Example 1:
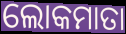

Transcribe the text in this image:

ଲୋକମାତା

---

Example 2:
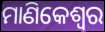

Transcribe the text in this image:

ମାଣିକେଶ୍ଵର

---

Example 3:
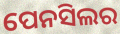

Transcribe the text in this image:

ପେନସିଲର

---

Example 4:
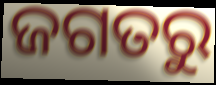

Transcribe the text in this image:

ଜଗତରୁ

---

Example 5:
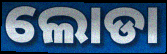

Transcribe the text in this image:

ଲୋଡା